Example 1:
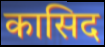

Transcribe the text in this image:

कासिद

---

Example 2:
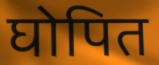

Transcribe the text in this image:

घोपित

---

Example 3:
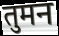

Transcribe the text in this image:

तुमन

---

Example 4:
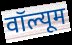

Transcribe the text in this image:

वॉल्यूम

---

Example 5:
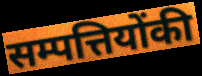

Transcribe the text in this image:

सम्पत्तियोंकी